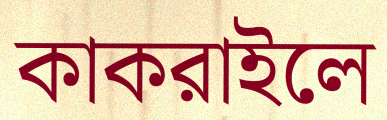
কাকরাইলে